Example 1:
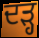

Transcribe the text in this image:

ਦੜ੍ਹ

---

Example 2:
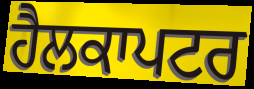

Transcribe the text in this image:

ਹੈਲਕਾਪਟਰ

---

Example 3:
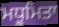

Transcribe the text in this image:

ਮਧੂਮਿਤਾ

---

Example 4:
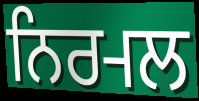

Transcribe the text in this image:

ਨਿਰ੍ਮਲ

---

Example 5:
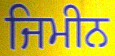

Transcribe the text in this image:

ਜਿਮੀਨ